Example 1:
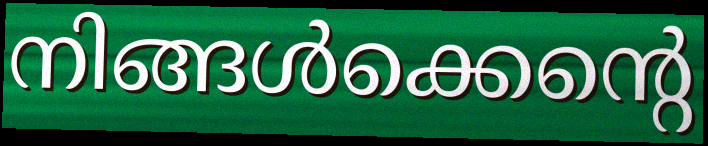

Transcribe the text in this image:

നിങ്ങൾക്കെന്റെ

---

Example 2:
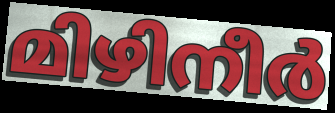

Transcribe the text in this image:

മിഴിനീർ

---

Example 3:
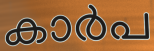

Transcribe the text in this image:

കാർപ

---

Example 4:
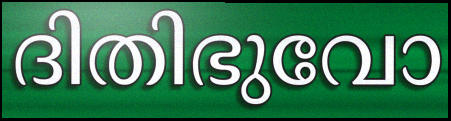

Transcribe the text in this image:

ദിതിഭുവോ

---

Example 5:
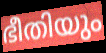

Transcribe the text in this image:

ഭീതിയും